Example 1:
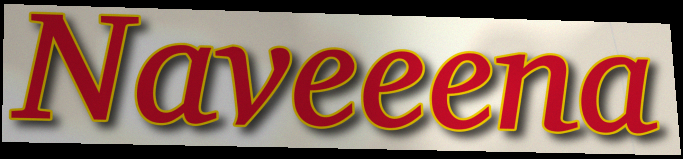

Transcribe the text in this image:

Naveeena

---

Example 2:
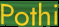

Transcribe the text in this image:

Pothi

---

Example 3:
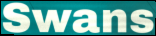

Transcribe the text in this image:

Swans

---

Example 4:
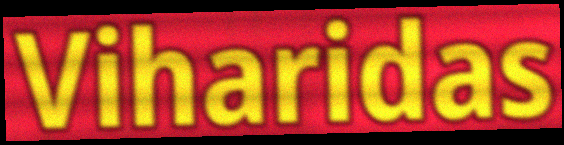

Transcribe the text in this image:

Viharidas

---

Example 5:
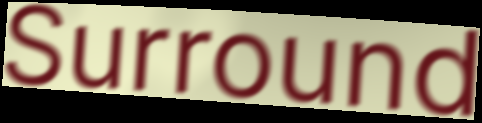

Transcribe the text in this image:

Surround